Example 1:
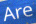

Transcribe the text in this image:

Are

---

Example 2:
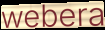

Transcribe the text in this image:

webera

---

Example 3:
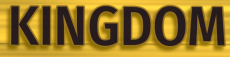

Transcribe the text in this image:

KINGDOM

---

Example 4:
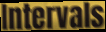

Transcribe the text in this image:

Intervals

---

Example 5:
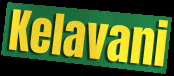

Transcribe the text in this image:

Kelavani